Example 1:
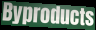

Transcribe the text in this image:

Byproducts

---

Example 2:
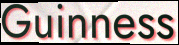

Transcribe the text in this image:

Guinness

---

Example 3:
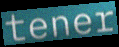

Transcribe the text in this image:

tener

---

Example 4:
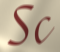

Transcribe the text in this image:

Sc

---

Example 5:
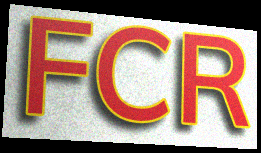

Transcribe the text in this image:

FCR